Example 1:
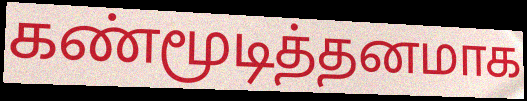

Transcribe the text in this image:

கண்மூடித்தனமாக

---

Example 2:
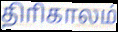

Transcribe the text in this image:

திரிகாலம்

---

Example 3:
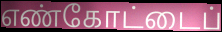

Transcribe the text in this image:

எண்கோட்டைப்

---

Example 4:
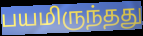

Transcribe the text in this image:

பயமிருந்தது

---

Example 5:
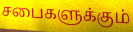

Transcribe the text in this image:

சபைகளுக்கும்